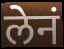
लेनं